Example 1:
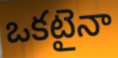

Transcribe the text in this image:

ఒకటైనా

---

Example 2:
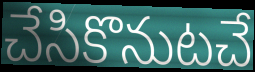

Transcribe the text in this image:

చేసికొనుటచే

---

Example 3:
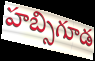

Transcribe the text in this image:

హబ్సిగూడ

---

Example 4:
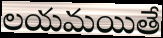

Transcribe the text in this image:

లయమయితే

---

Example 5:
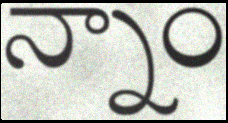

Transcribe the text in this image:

న్నాం